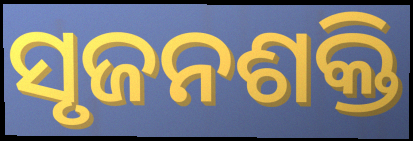
ସୃଜନଶକ୍ତି